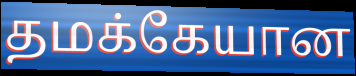
தமக்கேயான